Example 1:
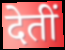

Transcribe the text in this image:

देतीं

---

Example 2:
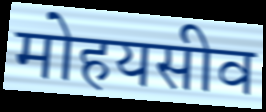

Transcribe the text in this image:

मोहयसीव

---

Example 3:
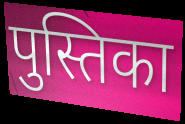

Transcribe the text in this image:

पुस्तिका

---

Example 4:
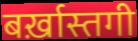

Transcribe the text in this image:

बर्ख़ास्तगी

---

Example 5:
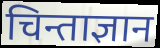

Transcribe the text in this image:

चिन्ताज्ञान